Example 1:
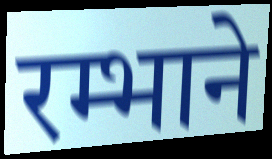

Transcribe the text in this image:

रम्भाने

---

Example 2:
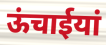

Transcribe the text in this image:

ऊंचाईयां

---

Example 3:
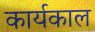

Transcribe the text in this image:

कार्यकाल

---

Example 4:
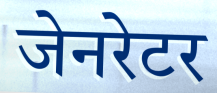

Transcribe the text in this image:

जेनरेटर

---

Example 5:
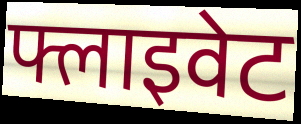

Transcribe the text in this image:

फ्लाइवेट